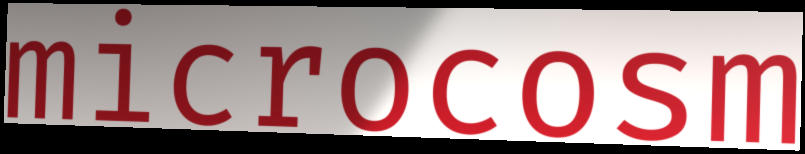
microcosm